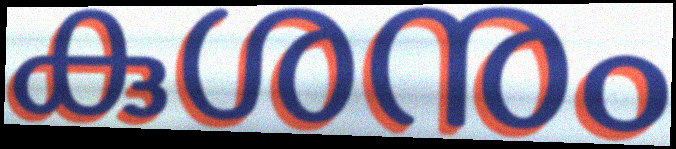
കുശനും